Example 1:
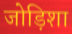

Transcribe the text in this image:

जोड़िशा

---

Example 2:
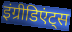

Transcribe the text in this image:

इंग्रीडिएंट्स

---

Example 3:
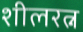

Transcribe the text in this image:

शीलरत्न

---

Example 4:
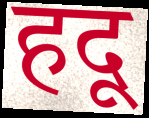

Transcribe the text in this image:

हदू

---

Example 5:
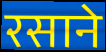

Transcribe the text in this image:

रसाने